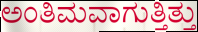
ಅಂತಿಮವಾಗುತ್ತಿತ್ತು